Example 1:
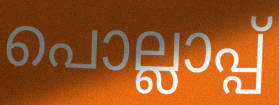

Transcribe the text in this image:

പൊല്ലാപ്പ്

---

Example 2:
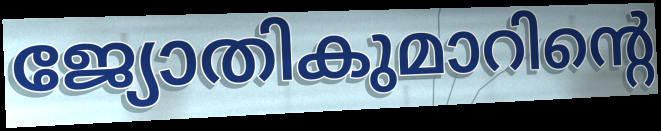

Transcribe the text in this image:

ജ്യോതികുമാറിന്റെ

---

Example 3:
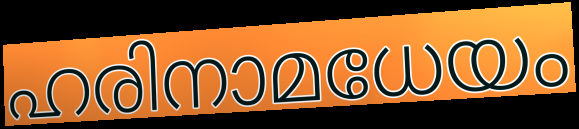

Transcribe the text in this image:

ഹരിനാമധേയം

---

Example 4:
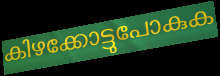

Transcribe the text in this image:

കിഴക്കോട്ടുപോകുക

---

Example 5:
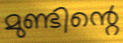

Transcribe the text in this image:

മുണ്ടിന്റെ